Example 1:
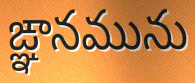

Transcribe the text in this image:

ఙ్ఞానమును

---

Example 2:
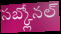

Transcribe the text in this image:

సబ్క్లోనల్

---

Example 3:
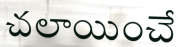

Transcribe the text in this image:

చలాయించే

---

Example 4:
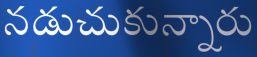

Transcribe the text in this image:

నడుచుకున్నారు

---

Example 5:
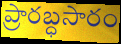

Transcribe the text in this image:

ప్రారబ్ధసారం